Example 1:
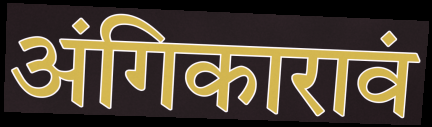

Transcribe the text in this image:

अंगिकारावं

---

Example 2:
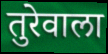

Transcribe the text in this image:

तुरेवाला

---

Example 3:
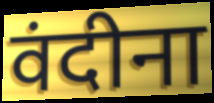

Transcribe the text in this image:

वंदीना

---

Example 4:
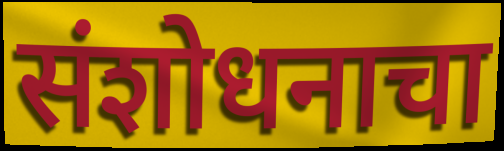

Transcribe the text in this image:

संशोधनाचा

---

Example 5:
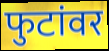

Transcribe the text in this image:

फुटांवर